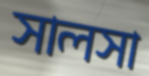
সালসা